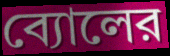
ব্যোলের